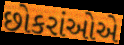
છોકરાંઓએ